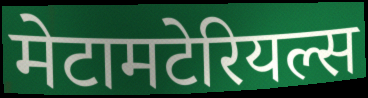
मेटामटेरियल्स